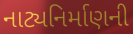
નાટ્યનિર્માણની